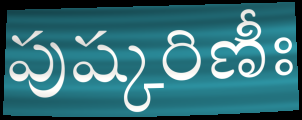
పుష్కరిణీః